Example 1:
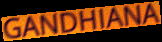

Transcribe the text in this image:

GANDHIANA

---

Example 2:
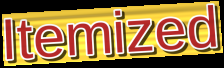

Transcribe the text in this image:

Itemized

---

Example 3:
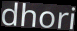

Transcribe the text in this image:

dhori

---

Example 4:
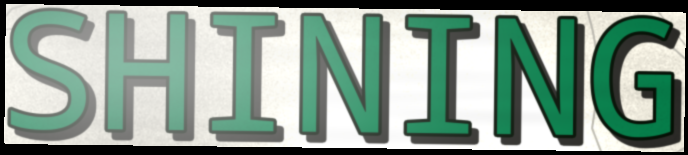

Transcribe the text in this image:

SHINING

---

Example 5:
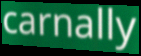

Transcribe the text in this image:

carnally